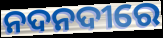
ନଦନଦୀରେ